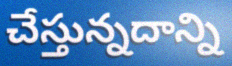
చేస్తున్నదాన్ని